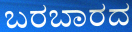
ಬರಬಾರದ